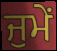
ਜੁਮੇਂ